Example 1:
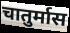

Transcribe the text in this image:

चातुर्मास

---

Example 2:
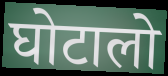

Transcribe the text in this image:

घोटालो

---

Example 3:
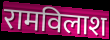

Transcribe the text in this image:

रामविलाश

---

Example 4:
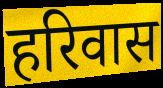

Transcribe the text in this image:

हरिवास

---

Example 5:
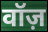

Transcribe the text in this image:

वॉज़